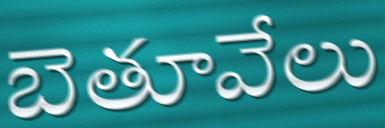
బెతూవేలు